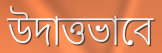
উদাত্তভাবে